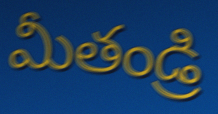
మీతండ్రి